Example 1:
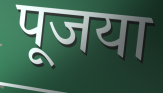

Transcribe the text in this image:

पूजया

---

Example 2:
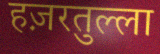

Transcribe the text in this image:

हज़रतुल्ला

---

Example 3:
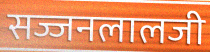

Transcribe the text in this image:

सज्जनलालजी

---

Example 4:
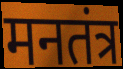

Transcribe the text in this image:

मनतंत्र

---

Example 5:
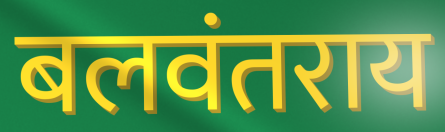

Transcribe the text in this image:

बलवंतराय